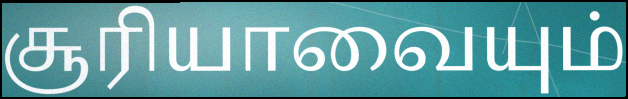
சூரியாவையும்